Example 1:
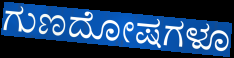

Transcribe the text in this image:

ಗುಣದೋಷಗಳೂ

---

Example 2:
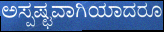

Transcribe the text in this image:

ಅಸ್ಪಷ್ಟವಾಗಿಯಾದರೂ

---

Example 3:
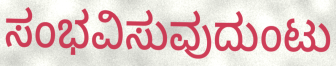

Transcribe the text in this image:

ಸಂಭವಿಸುವುದುಂಟು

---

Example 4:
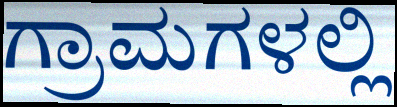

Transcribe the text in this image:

ಗ್ರಾಮಗಳಲ್ಲಿ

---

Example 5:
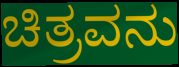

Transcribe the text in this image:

ಚಿತ್ರವನು